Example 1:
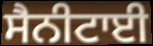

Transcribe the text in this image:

ਸੈਨੀਟਾਈ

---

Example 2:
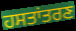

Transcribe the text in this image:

ਹਸਤਾਂਤਰਣ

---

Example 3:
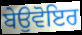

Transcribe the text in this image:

ਬੇਉਵੋਇਰ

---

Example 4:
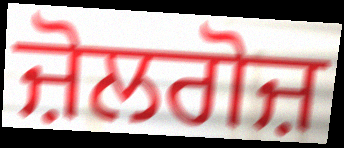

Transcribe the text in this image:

ਜ਼ੋਲਗੋਜ਼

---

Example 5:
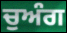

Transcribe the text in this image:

ਚੁਅੰਗ